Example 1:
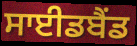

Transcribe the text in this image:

ਸਾਈਡਬੈਂਡ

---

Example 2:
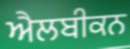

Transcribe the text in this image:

ਐਲਬੀਕਨ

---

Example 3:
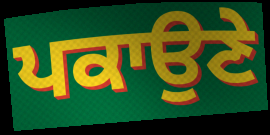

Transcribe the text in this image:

ਪਕਾਉਣੇ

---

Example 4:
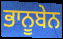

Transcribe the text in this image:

ਭਾਨੂਬੇਨ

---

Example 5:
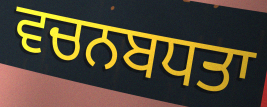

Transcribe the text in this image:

ਵਚਨਬਧਤਾ